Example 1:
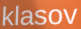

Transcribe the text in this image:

klasov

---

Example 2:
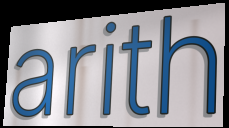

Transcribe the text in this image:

arith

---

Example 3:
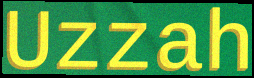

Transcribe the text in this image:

Uzzah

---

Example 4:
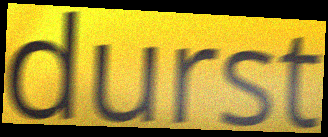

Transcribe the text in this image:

durst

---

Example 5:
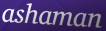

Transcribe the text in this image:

ashaman